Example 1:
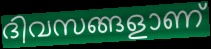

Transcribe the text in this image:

ദിവസങ്ങളാണ്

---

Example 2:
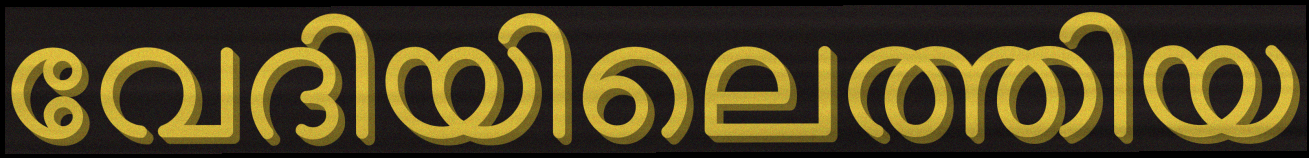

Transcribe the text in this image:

വേദിയിലെത്തിയ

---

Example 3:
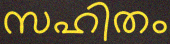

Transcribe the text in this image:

സഹിതം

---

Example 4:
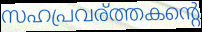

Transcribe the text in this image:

സഹപ്രവര്ത്തകന്റെ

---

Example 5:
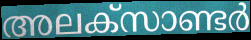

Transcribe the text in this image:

അലക്സാണ്ടർ